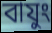
বাযুং